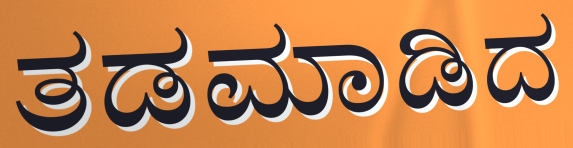
ತಡಮಾಡಿದ